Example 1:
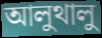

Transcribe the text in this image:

আলুথালু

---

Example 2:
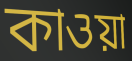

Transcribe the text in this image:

কাওয়া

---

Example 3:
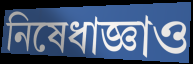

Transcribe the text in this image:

নিষেধাজ্ঞাও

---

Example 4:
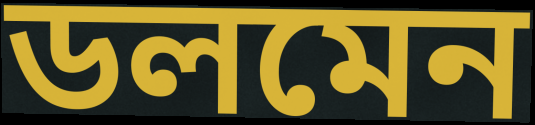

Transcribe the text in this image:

ডলমেন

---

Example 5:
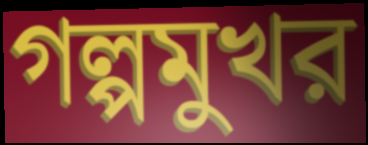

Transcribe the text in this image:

গল্পমুখর